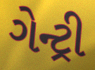
ગેન્ટ્રી